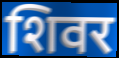
शिवर